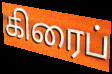
கிரைப்